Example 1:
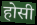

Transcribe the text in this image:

होसी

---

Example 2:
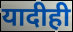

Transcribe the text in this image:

यादीही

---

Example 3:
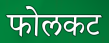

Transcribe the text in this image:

फोलकट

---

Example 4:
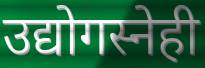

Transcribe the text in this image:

उद्योगस्नेही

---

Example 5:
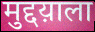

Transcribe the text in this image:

मुद्दय़ाला